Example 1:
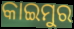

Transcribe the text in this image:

କାଇମୁର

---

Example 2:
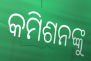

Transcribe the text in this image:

କମିଶନଙ୍କୁ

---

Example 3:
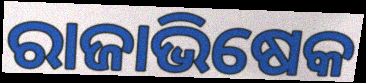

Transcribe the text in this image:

ରାଜାଭିଷେକ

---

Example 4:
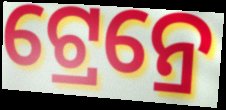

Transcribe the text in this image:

ଟ୍ରେନ୍ରେ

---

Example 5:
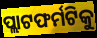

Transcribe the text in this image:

ପ୍ଲାଟଫର୍ମଟିକୁ